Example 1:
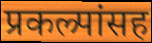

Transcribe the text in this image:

प्रकल्पांसह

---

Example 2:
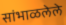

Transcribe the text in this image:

सांभाळलेले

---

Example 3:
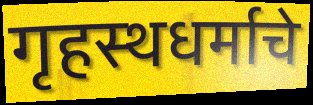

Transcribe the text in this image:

गृहस्थधर्माचे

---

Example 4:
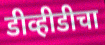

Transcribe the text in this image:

डीव्हीडीचा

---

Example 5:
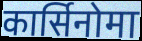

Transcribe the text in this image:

कार्सिनोमा